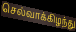
செல்வாக்கிழந்து